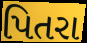
પિતરા